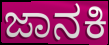
ಜಾನಕಿ